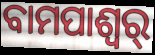
ବାମପାଶ୍ୱର୍